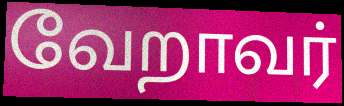
வேறாவர்